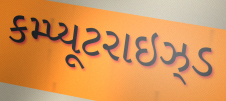
કમ્પ્યૂટરાઇઝ્ડ